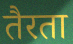
तैरता